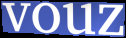
vouz